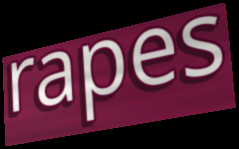
rapes